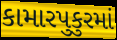
કામારપુકુરમાં